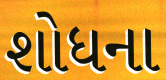
શોધના